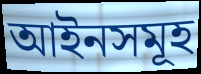
আইনসমূহ